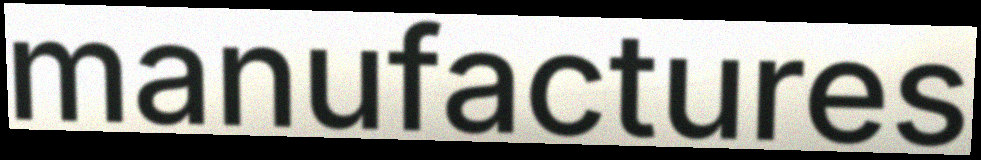
manufactures